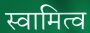
स्वामित्व